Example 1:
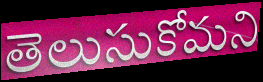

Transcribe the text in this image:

తెలుసుకోమని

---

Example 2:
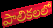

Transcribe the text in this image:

పాలికలలో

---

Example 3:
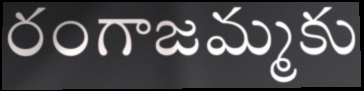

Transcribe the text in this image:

రంగాజమ్మకు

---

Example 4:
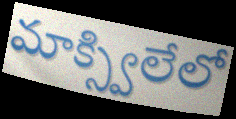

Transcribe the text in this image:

మాక్స్విలేలో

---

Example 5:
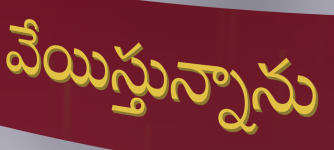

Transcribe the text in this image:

వేయిస్తున్నాను